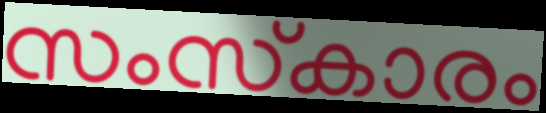
സംസ്‌കാരം